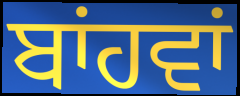
ਬਾਂਹਵਾਂ